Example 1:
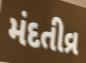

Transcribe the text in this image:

મંદતીવ્ર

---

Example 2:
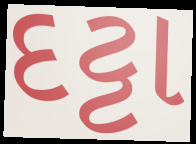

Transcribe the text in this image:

દટ્ટા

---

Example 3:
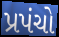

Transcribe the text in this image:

પ્રપંચો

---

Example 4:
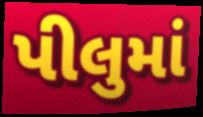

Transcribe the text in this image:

પીલુમાં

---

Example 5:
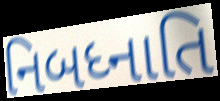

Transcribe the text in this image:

નિબધ્નાતિ